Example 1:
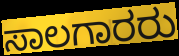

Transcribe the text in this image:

ಸಾಲಗಾರರು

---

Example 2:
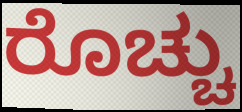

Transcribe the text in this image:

ರೊಚ್ಚು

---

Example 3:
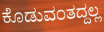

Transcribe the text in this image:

ಕೊಡುವಂತದ್ದಲ್ಲ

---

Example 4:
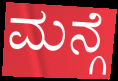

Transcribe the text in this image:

ಮನ್ಗೆ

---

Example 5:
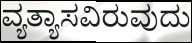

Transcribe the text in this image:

ವ್ಯತ್ಯಾಸವಿರುವುದು